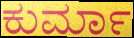
ಕುರ್ಮಾ